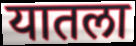
यातला